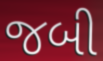
જબી